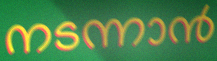
നടന്നാൻ